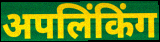
अपलिंकिंग